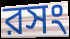
রসং